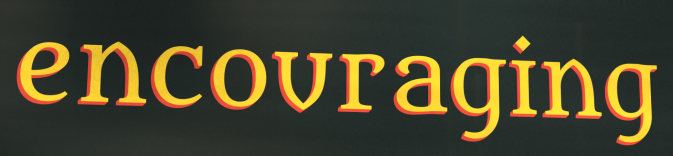
encouraging